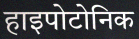
हाइपोटोनिक